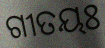
ଗୀତୟଃ